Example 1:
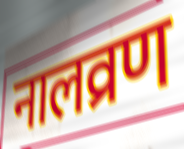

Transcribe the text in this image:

नालव्रण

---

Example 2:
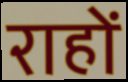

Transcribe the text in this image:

राहों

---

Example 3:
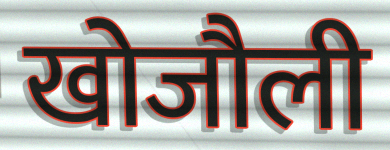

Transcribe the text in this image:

खोजौली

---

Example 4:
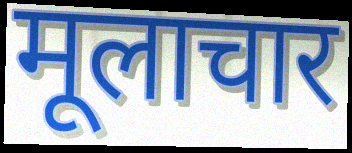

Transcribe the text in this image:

मूलाचार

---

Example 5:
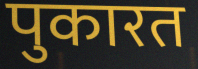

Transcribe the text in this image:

पुकारत